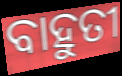
ବାହୁତୀ